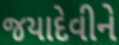
જયાદેવીને